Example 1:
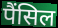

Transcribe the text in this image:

पैंसिल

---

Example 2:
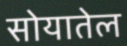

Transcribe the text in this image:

सोयातेल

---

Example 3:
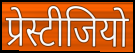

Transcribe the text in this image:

प्रेस्टीजियो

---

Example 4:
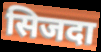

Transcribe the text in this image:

सिजदा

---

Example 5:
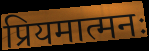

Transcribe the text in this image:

प्रियमात्मनः